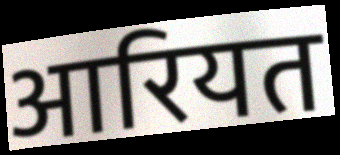
आरियत